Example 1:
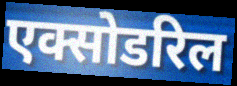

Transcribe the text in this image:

एक्सोडरिल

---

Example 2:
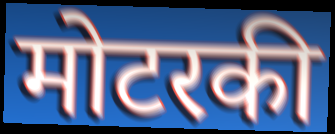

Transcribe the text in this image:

मोटरकी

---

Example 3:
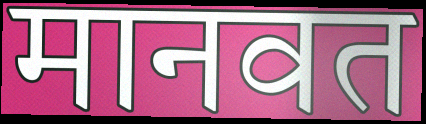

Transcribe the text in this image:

मानवत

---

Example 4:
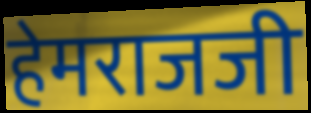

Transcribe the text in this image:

हेमराजजी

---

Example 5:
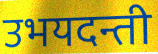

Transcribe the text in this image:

उभयदन्ती